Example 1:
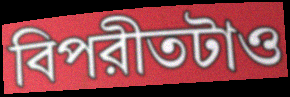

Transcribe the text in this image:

বিপরীতটাও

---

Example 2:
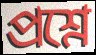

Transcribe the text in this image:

প্রশ্নে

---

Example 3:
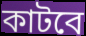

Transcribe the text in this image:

কাটবে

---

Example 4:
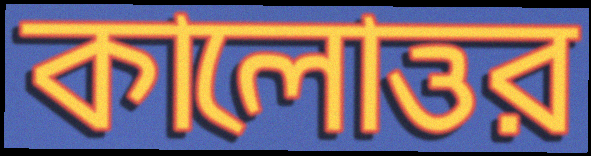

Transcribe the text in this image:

কালোত্তর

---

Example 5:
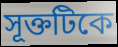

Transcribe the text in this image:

সূক্তটিকে